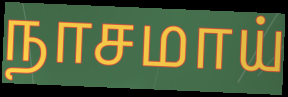
நாசமாய்